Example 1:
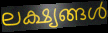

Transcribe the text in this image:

ലക്ഷ്യങ്ങൾ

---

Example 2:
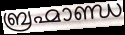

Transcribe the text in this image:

ബ്രഹ്മാണ്ഡ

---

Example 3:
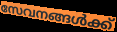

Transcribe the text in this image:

സേവനങ്ങൾക്ക്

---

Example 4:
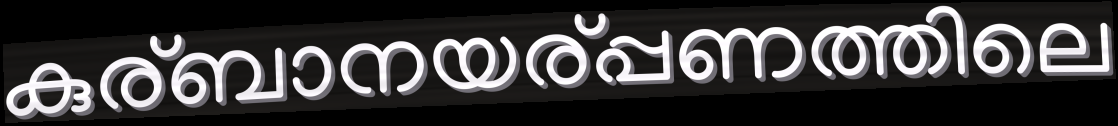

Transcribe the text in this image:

കുര്ബാനയര്പ്പണത്തിലെ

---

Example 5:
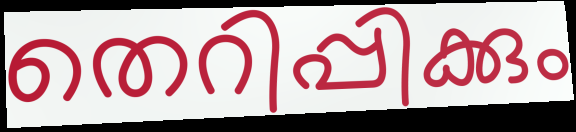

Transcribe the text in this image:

തെറിപ്പിക്കും